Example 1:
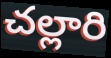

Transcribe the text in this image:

చల్లారి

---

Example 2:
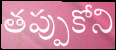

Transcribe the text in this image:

తప్పుకోని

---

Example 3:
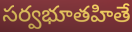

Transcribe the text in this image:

సర్వభూతహితే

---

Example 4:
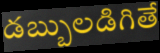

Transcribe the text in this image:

డబ్బులడిగితే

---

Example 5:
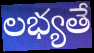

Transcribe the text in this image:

లభ్యతే